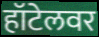
हॉटेलवर